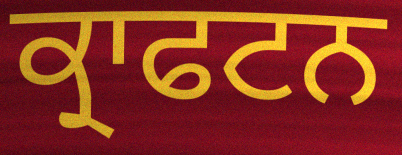
ਕ੍ਰਾਫਟਨ